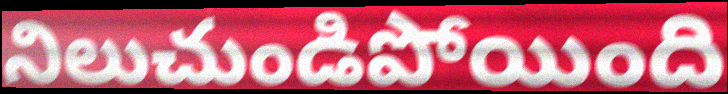
నిలుచుండిపోయింది